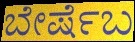
ಬೇರ್ಷೆಬ